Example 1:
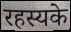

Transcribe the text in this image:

रहस्यके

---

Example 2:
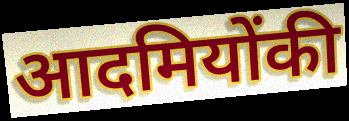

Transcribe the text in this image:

आदमियोंकी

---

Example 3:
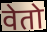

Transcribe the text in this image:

वेतो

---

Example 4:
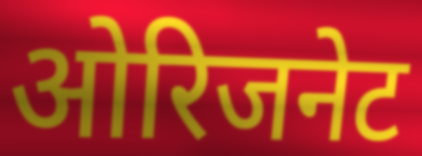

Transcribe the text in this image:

ओरिजनेट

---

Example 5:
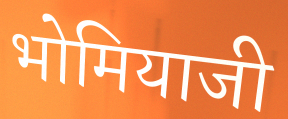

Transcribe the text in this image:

भोमियाजी